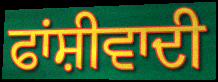
ਫਾਂਸ਼ੀਵਾਦੀ